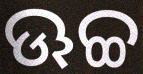
ଊଚ୍ଚ